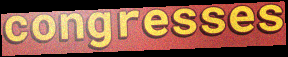
congresses